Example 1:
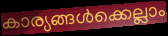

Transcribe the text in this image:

കാര്യങ്ങൾക്കെല്ലാം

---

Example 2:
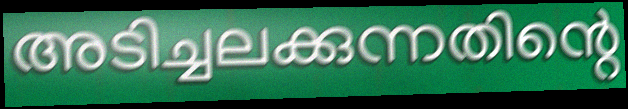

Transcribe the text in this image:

അടിച്ചലക്കുന്നതിന്റെ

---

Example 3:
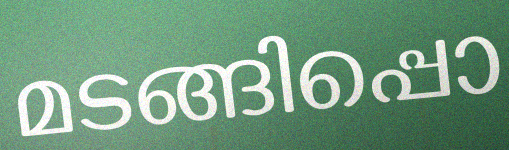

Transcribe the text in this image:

മടങ്ങിപ്പൊ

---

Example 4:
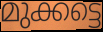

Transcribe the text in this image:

മുക്കട്ടെ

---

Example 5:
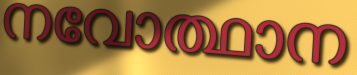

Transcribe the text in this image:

നവോത്ഥാന